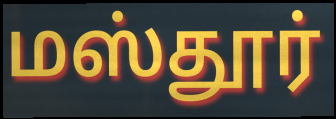
மஸ்தூர்